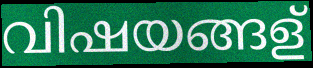
വിഷയങ്ങള്